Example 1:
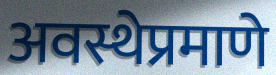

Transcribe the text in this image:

अवस्थेप्रमाणे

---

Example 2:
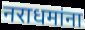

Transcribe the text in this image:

नराधमांना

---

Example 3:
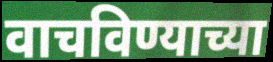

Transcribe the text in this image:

वाचविण्याच्या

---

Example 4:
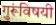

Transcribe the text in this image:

गुरूंविषयी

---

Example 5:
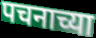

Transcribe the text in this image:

पचनाच्या